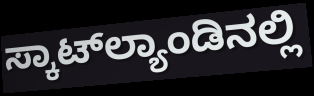
ಸ್ಕಾಟ್‌ಲ್ಯಾಂಡಿನಲ್ಲಿ